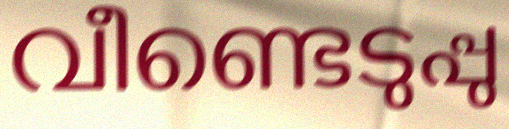
വീണ്ടെടുപ്പു